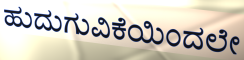
ಹುದುಗುವಿಕೆಯಿಂದಲೇ